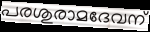
പരശുരാമദേവന്